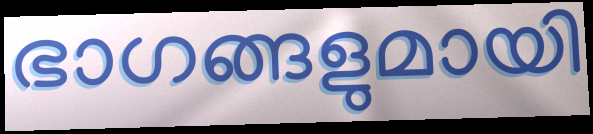
ഭാഗങ്ങളുമായി